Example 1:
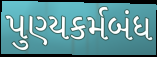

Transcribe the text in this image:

પુણ્યકર્મબંધ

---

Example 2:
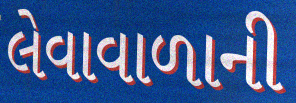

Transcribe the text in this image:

લેવાવાળાની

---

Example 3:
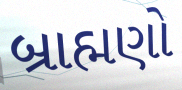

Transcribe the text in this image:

બ્રાહ્મણો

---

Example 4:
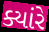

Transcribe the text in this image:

ક્યાંરે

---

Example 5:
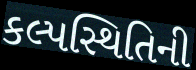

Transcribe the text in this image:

કલ્પસ્થિતિની